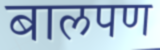
बालपण